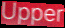
Upper